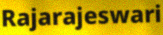
Rajarajeswari